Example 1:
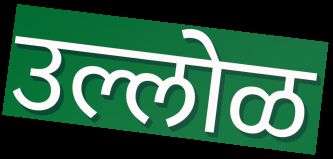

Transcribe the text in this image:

उल्लोळ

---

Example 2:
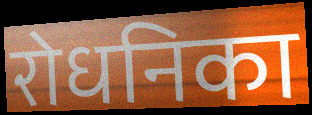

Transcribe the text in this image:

रोधनिका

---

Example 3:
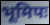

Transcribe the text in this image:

भूमिपः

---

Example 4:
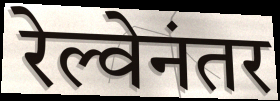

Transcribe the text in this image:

रेल्वेनंतर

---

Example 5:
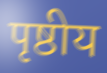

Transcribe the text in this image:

पृष्ठीय